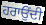
ਹਰਾਉਂਦੀ